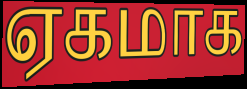
ஏகமாக